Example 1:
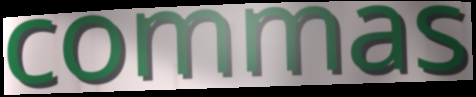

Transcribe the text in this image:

commas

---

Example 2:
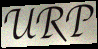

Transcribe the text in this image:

URP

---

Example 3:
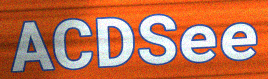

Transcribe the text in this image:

ACDSee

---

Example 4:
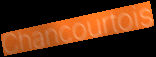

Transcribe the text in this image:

Chancourtois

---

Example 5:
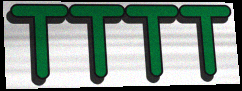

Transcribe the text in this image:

TTTT